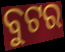
ବୁଟର